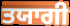
ਤਯਾਗੀ